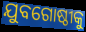
ଯୁବଗୋଷ୍ଠୀକୁ